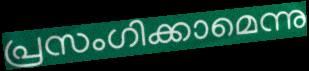
പ്രസംഗിക്കാമെന്നു